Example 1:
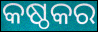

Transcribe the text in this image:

କଷ୍ଠକର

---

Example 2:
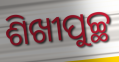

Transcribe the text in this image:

ଶିଖୀପୁଚ୍ଛ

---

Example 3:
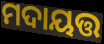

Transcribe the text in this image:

ମଦାୟତ୍ତ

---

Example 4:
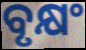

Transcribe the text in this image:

ବୃକ୍ଷଂ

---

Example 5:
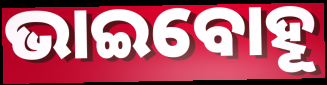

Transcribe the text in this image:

ଭାଇବୋହୂ